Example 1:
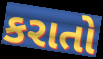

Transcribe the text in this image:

કરાતો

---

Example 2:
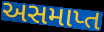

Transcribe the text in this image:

અસમાપ્ત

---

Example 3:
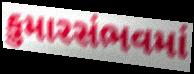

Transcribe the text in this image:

કુમારસંભવમાં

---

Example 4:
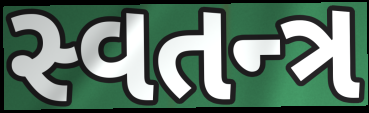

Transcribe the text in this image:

સ્વતન્ત્ર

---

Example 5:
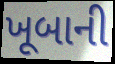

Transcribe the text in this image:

ખૂબાની